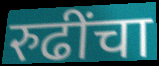
रुढींचा